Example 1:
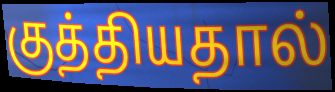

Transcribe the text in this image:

குத்தியதால்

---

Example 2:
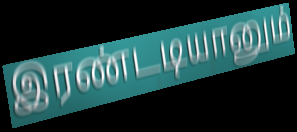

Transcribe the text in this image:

இரண்டடியானும்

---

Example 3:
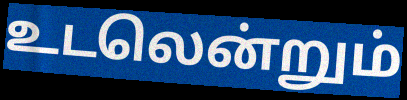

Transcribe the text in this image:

உடலென்றும்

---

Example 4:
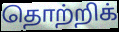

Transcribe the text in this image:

தொற்றிக்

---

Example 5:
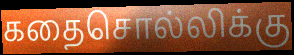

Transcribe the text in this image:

கதைசொல்லிக்கு